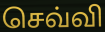
செவ்வி